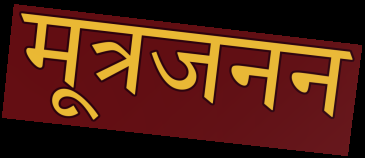
मूत्रजनन